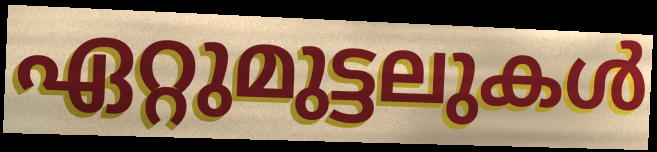
ഏറ്റുമുട്ടലുകൾ